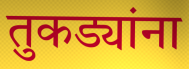
तुकड्यांना